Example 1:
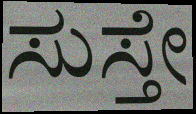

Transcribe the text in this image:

ಸುಸ್ತೇ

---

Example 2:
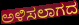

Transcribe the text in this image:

ಅಳಿಸಲಾಗದ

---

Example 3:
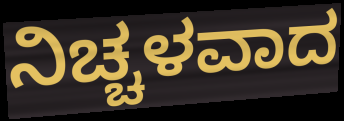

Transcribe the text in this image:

ನಿಚ್ಚಳವಾದ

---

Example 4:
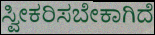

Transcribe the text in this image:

ಸ್ವೀಕರಿಸಬೇಕಾಗಿದೆ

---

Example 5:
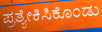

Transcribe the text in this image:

ಪ್ರತ್ಯೇಕಿಸಿಕೊಂಡು